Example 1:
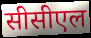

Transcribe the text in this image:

सीसीएल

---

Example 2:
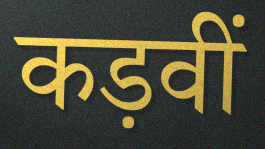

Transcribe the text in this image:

कड़वीं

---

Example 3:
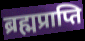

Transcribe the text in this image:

ब्रह्मप्राप्ति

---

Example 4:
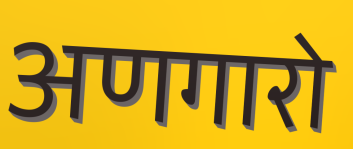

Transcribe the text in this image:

अणगारो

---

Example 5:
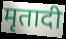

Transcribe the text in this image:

मृतादी